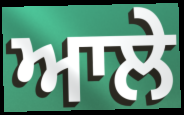
ਆਲੇ